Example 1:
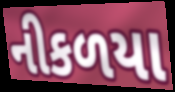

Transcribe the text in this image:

નીકળયા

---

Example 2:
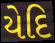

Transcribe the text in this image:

યેદિ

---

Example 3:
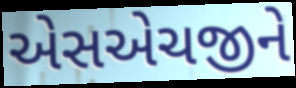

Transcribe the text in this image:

એસએચજીને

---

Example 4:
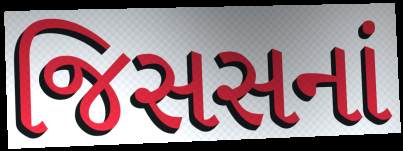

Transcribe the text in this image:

જિસસનાં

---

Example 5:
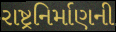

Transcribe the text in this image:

રાષ્ટ્રનિર્માણની